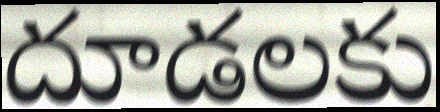
దూడలకు